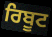
ਰਿਬੂਟ